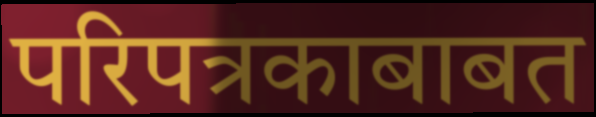
परिपत्रकाबाबत